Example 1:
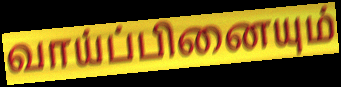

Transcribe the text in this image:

வாய்ப்பினையும்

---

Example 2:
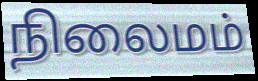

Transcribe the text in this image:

நிலைமம்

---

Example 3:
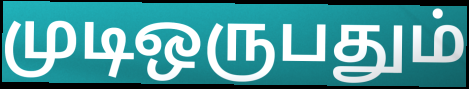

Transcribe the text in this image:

முடிஒருபதும்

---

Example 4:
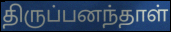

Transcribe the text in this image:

திருப்பனந்தாள்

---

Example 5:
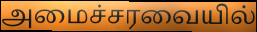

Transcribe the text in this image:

அமைச்சரவையில்